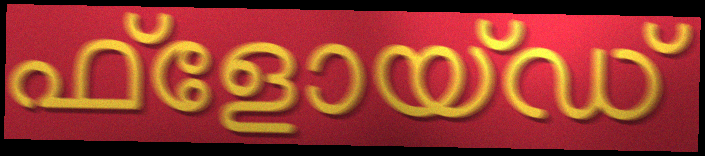
ഫ്ളോയ്ഡ്